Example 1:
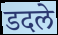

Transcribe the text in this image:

डदले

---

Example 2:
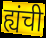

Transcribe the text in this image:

ह्यंची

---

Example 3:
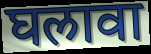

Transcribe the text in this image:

घलावा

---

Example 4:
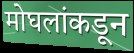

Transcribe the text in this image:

मोघलांकडून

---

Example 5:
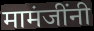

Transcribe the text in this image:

मामंजींनी